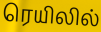
ரெயிலில்